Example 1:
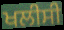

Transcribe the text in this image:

ਖਲੀਸੀ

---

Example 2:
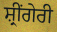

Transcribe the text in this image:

ਸ਼੍ਰੀਂਗੇਰੀ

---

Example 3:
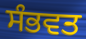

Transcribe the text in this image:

ਸੰਭਵਤ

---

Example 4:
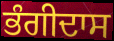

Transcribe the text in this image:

ਭੰਗੀਦਾਸ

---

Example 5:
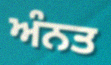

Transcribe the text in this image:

ਅੰਨਤ